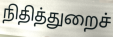
நிதித்துறைச்